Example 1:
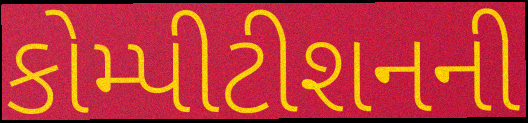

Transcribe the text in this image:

કોમ્પીટીશનની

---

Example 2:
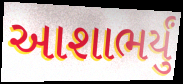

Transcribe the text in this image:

આશાભર્યું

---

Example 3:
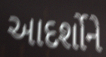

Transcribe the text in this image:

આદર્શોને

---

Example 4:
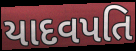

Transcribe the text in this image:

યાદવપતિ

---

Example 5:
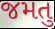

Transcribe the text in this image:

જમતુ